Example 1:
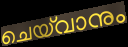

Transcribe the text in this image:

ചെയ്‌വാനും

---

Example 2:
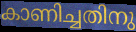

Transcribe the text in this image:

കാണിച്ചതിനു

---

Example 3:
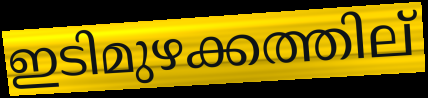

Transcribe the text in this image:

ഇടിമുഴക്കത്തില്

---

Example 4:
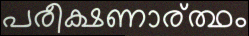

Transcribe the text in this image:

പരീക്ഷണാര്ത്ഥം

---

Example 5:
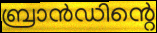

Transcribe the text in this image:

ബ്രാൻഡിന്റെ